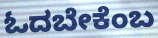
ಓದಬೇಕೆಂಬ